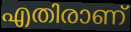
എതിരാണ്